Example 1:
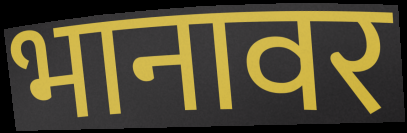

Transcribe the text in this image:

भानावर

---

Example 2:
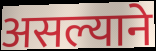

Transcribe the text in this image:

असल्‍याने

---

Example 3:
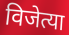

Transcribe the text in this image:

विजेत्या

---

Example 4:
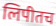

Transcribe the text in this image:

लिपीतच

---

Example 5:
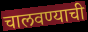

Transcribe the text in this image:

चालवण्याची